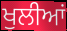
ਖੁਲੀਆਂ